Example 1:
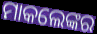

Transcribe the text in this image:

ମାକଲେଙ୍କର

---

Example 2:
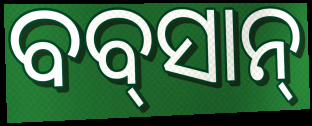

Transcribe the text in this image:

ବବ୍‌ସାନ୍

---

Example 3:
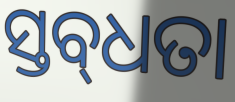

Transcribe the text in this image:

ସ୍ତବ୍‍ଧତା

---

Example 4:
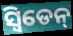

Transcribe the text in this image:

ସ୍ଵିଡେନ୍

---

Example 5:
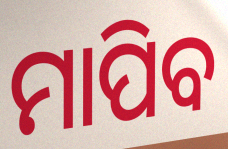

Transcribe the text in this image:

ମାପିବ